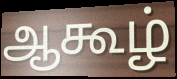
ஆகூழ்